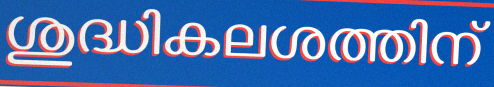
ശുദ്ധികലശത്തിന്